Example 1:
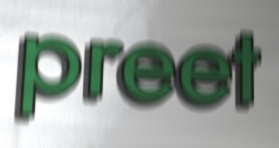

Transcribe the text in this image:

preet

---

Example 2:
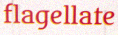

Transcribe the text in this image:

flagellate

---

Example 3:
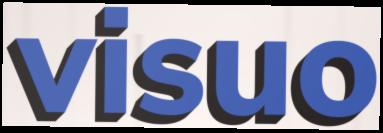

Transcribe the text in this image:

visuo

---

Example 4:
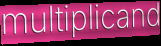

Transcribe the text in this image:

multiplicand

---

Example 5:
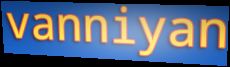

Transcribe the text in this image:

vanniyan